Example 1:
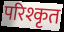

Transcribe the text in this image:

परिश्कृत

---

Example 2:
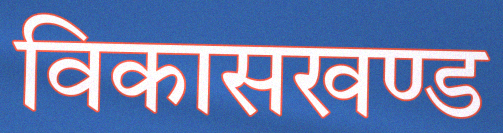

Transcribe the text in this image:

विकासखण्‍ड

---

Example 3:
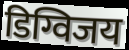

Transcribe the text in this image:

डिग्विजय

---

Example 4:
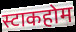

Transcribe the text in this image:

स्टाकहोम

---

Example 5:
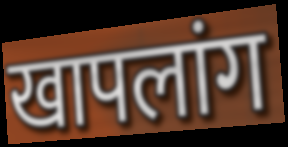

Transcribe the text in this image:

खापलांग